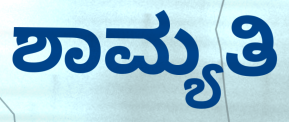
ಶಾಮ್ಯತಿ